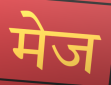
मेज